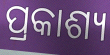
ପ୍ରକାଶ୍ୟ